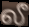
லீ